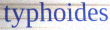
typhoides